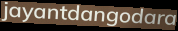
jayantdangodara